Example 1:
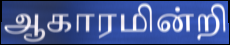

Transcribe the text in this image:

ஆகாரமின்றி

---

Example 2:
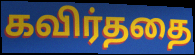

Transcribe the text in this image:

கவிர்ததை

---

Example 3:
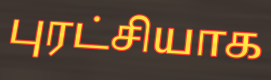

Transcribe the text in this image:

புரட்சியாக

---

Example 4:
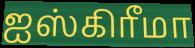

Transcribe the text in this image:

ஐஸ்கிரீமா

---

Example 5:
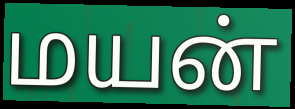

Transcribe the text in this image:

மயன்